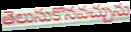
తెలుసుకొనవచ్చును